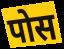
पोस